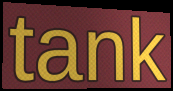
tank